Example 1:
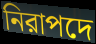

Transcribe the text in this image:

নিরাপদে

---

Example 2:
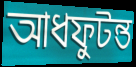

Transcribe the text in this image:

আধফুটন্ত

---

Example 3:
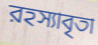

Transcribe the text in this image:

রহস্যাবৃতা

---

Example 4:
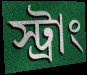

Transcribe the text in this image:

স্ট্রাং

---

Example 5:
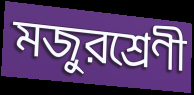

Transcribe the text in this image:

মজুরশ্রেণী